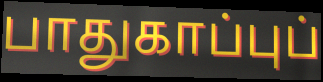
பாதுகாப்புப்